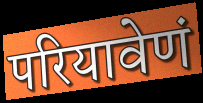
परियावेणं